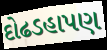
દોઢડહાપણ